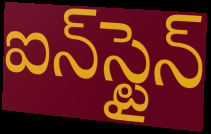
ఐన్‌స్టైన్